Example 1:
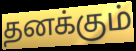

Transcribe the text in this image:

தனக்கும்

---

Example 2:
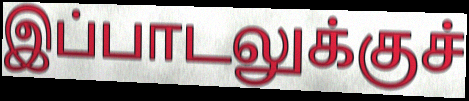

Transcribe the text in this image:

இப்பாடலுக்குச்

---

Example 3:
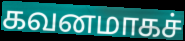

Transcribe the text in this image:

கவனமாகச்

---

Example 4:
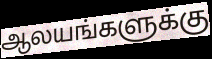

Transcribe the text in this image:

ஆலயங்களுக்கு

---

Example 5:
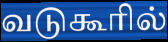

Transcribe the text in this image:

வடுகூரில்